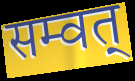
सम्वत्